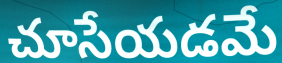
చూసేయడమే